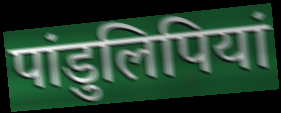
पांडुलिपियां